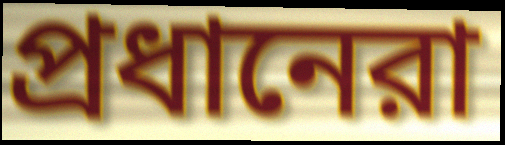
প্রধানেরা